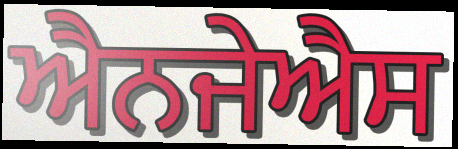
ਐਨਜੇਐਸ